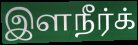
இளநீர்க்